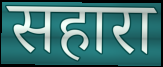
सहारा